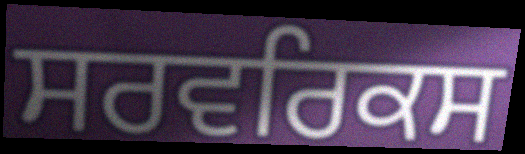
ਸਰਵਰਿਕਸ